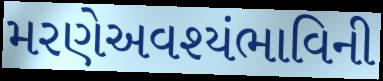
મરણેઅવશ્યંભાવિની